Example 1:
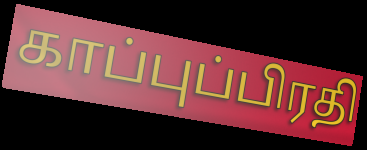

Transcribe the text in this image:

காப்புப்பிரதி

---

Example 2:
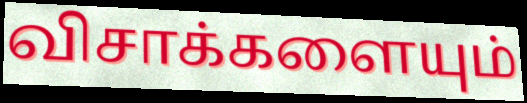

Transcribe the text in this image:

விசாக்களையும்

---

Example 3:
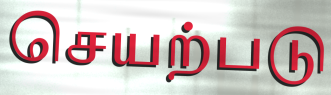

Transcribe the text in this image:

செயற்படு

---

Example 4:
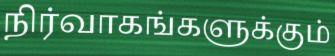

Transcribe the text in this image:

நிர்வாகங்களுக்கும்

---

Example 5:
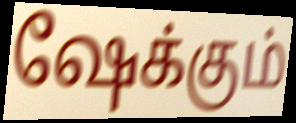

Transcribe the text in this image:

ஷேக்கும்